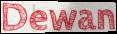
Dewan